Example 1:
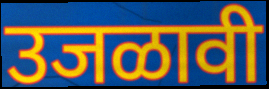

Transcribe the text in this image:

उजळावी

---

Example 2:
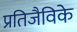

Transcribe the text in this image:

प्रतिजैविके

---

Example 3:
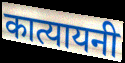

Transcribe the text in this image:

कात्यायनी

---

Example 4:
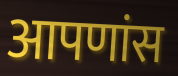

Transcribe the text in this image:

आपणांस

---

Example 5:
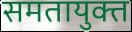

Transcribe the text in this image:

समतायुक्त